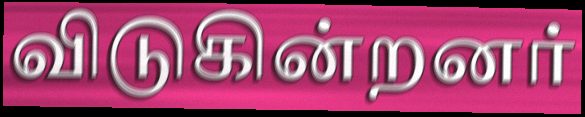
விடுகின்றனர்